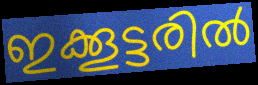
ഇക്കൂട്ടരിൽ